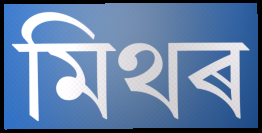
মিথৰ